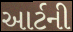
આર્ટની